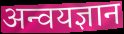
अन्वयज्ञान